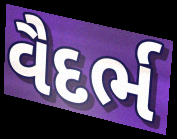
વૈદર્ભ